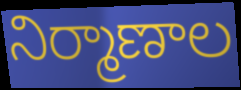
నిర్మాణాల